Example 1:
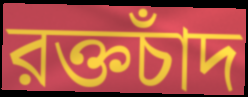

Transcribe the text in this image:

রক্তচাঁদ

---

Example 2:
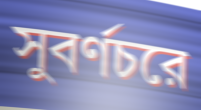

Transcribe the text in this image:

সুবর্ণচরে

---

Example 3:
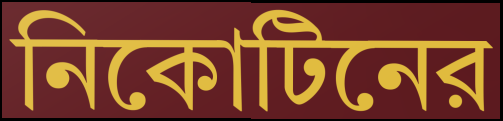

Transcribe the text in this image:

নিকোটিনের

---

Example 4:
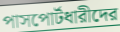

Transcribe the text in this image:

পাসপোর্টধারীদের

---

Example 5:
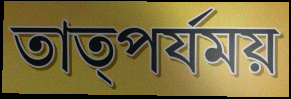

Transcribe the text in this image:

তাত্পর্যময়